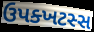
ઉપક્ખટસ્સ